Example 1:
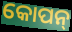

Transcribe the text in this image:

କୋପନ୍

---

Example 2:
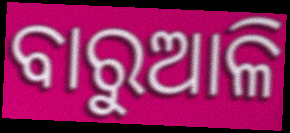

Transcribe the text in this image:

ବାରୁଆଳି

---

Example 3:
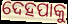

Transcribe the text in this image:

ଦେହପାକୁ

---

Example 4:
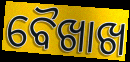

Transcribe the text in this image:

ବୈଖାଖ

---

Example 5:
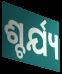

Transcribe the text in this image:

ଶ୍ଚର୍ଯ୍ୟ